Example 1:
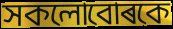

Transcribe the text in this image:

সকলোবোৰকে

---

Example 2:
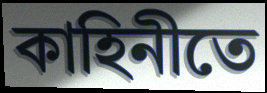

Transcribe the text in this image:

কাহিনীতে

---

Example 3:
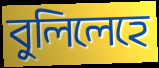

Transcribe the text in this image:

বুলিলেহে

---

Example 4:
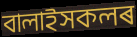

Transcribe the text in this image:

বালাইসকলৰ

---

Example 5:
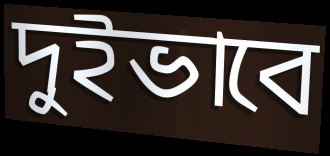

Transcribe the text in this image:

দুইভাবে